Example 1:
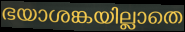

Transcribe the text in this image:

ഭയാശങ്കയില്ലാതെ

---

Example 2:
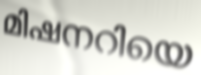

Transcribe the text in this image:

മിഷനറിയെ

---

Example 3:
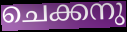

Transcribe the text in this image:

ചെക്കനു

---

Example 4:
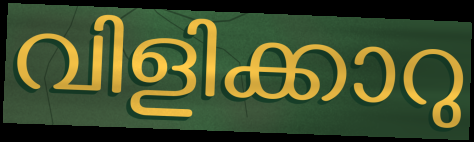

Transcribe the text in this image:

വിളിക്കാറു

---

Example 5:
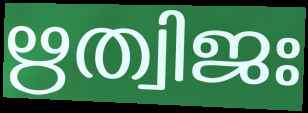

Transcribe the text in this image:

ഋത്വിജഃ